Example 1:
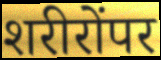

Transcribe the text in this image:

शरीरोंपर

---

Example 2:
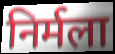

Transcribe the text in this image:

निर्मला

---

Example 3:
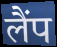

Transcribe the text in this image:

लैंप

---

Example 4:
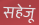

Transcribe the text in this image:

सहेजूं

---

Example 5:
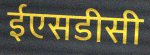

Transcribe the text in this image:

ईएसडीसी